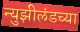
न्युझीलंडच्या